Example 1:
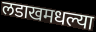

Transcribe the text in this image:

लडाखमधल्या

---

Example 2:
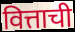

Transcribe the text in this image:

वित्ताची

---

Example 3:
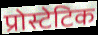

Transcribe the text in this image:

प्रोस्टेटिक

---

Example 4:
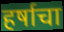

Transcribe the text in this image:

हर्षाचा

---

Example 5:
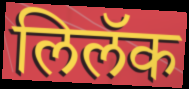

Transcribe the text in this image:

लिलॅक